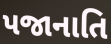
પજાનાતિ